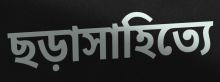
ছড়াসাহিত্যে